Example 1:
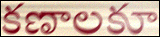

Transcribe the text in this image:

కణాలకూ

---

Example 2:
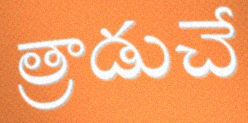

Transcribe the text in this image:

త్రాడుచే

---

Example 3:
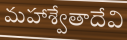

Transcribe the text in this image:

మహాశ్వేతాదేవి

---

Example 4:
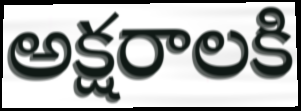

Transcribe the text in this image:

అక్షరాలకి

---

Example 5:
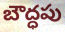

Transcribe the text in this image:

బౌద్ధపు